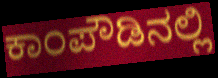
ಕಾಂಪೌಡಿನಲ್ಲಿ